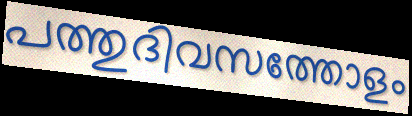
പത്തുദിവസത്തോളം